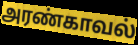
அரண்காவல்